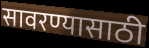
सावरण्यासाठी